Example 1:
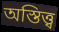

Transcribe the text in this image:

অস্তিত্ত্ব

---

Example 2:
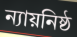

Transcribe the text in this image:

ন্যায়নিষ্ঠ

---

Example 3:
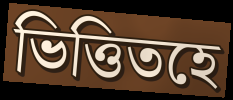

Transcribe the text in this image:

ভিত্তিতহে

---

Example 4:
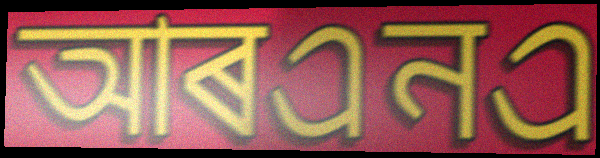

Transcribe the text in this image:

আৰএনএ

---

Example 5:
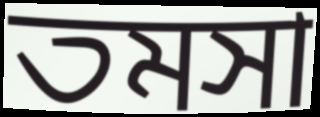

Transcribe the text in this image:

তমসা